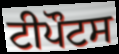
ਟੀਪੌਟਸ